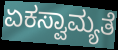
ಏಕಸ್ವಾಮ್ಯತೆ